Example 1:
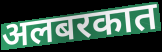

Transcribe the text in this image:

अलबरकात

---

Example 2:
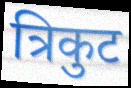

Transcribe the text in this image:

त्रिकुट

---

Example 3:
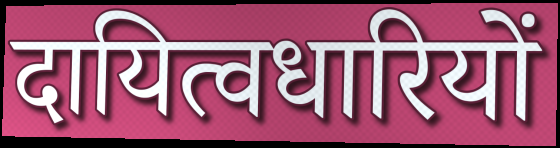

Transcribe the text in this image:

दायित्वधारियों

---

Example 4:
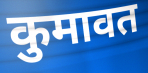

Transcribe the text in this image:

कुमावत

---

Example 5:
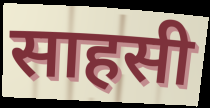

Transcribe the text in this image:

साहसी